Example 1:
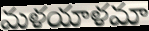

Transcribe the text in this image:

మళయాళమా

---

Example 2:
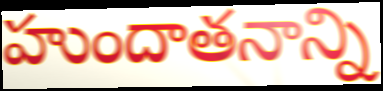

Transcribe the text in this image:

హుందాతనాన్ని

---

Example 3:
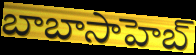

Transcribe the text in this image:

బాబాసాహెబ్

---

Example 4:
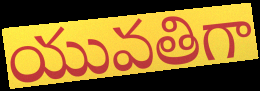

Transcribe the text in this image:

యువతిగా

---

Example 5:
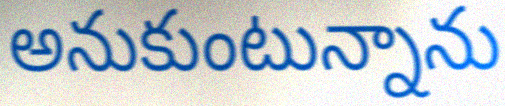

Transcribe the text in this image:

అనుకుంటున్నాను